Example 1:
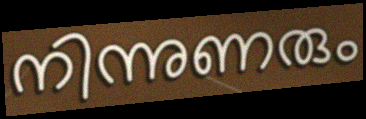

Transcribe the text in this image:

നിന്നുണരും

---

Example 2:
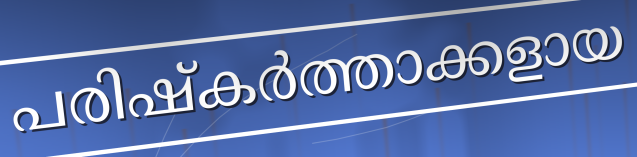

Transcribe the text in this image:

പരിഷ്കർത്താക്കളായ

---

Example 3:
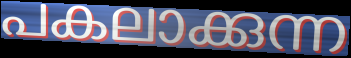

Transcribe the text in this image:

പകലാക്കുന്ന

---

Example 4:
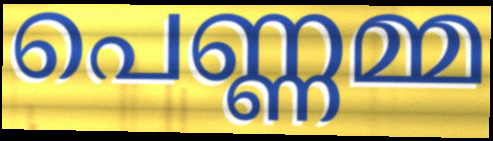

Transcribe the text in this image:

പെണ്ണമ്മ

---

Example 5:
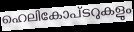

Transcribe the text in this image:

ഹെലികോപ്ടറുകളും